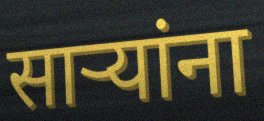
सार्‍यांना